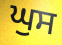
ਘੁਸ